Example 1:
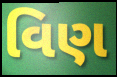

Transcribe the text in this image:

વિણ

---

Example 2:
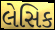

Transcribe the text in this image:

લેસિક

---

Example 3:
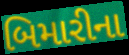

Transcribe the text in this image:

બિમારીના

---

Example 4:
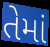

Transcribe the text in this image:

તેમાં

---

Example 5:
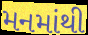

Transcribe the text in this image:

મનમાંથી